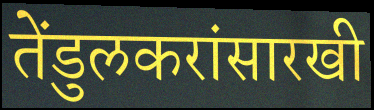
तेंडुलकरांसारखी